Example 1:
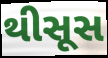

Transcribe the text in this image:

થીસૂસ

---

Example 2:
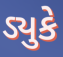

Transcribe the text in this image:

ડ્યુકે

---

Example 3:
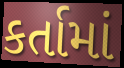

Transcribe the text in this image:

કર્તામાં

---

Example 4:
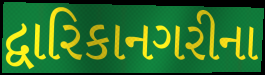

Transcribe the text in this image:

દ્વારિકાનગરીના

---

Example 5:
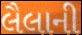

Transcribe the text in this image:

લૈલાની